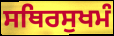
ਸਥਿਰਸੁਖਮੰ